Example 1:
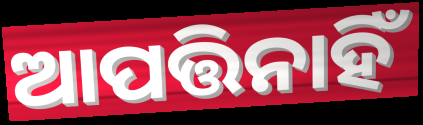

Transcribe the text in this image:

ଆପତ୍ତିନାହିଁ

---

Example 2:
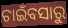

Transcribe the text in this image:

ଚାଇଁବସାରୁ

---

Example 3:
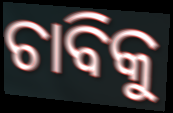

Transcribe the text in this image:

ଚାବିକୁ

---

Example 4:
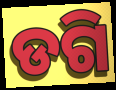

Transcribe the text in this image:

ଡଗି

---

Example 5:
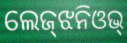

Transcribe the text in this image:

ଲେଜ୍‌ଝନିଓଭ୍